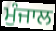
ਮੁੰਜਾਲ